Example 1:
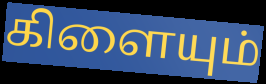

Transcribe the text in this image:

கிளையும்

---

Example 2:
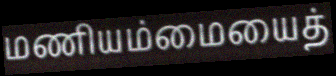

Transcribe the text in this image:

மணியம்மையைத்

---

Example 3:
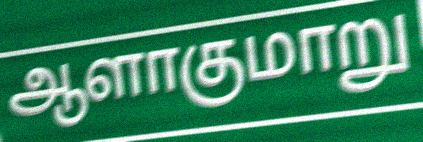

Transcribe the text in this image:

ஆளாகுமாறு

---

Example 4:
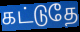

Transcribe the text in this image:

கட்டுதே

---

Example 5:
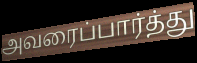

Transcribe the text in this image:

அவரைப்பார்த்து